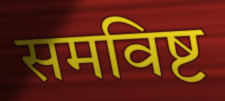
समविष्ट